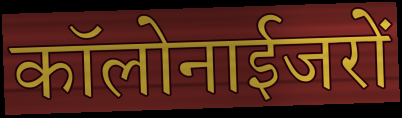
कॉलोनाईजरों